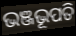
ଭଞ୍ଜଭୂପତି